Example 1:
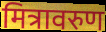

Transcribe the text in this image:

मित्रावरुण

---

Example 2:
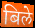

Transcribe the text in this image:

बिले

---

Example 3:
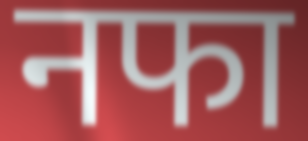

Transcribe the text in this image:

नफा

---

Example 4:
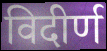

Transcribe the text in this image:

विदीर्ण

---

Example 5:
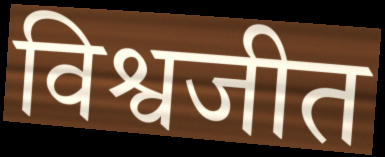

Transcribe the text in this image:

विश्वजीत